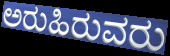
ಅರುಹಿರುವರು